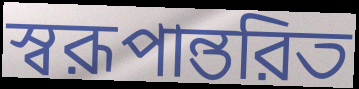
স্বরূপান্তরিত